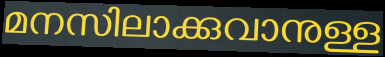
മനസിലാക്കുവാനുള്ള